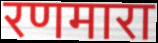
रणमारा